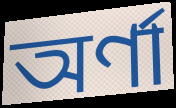
অর্ণা